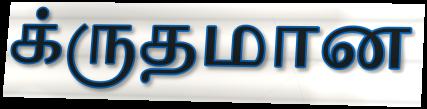
க்ருதமான